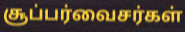
சூப்பர்வைசர்கள்